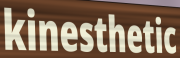
kinesthetic